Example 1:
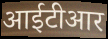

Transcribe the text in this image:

आईटीआर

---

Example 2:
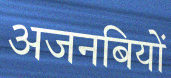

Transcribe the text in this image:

अजनबियों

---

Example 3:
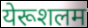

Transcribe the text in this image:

येरूशलम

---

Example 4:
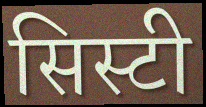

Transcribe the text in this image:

सिस्टी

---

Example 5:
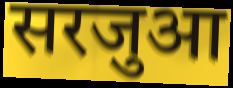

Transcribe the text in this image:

सरजुआ